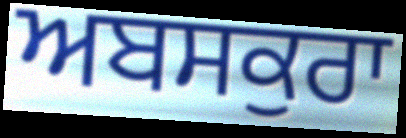
ਅਬਸਕੁਰਾ